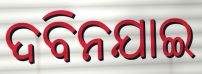
ଦବିନଯାଇ